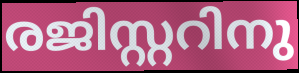
രജിസ്റ്ററിനു